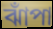
ঝাঁপা